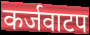
कर्जवाटप